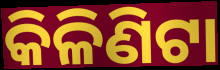
କିଳିଣିଟା